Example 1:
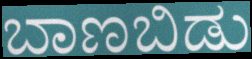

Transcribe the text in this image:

ಬಾಣಬಿಡು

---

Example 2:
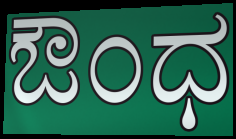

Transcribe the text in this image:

ಔಂಧ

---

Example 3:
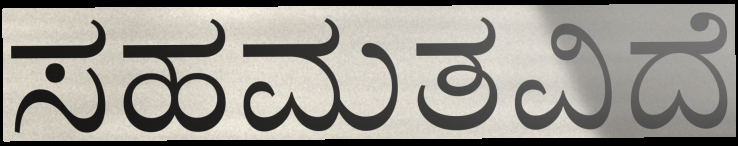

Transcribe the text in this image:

ಸಹಮತವಿದೆ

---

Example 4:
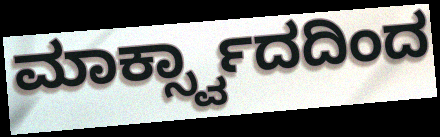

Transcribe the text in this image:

ಮಾರ್ಕ್ಸ್ವಾದದಿಂದ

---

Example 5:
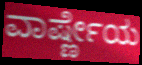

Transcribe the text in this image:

ವಾರ್ಷ್ಣೇಯ